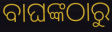
ବାଘଙ୍କଠାରୁ